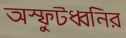
অস্ফুটধ্বনির